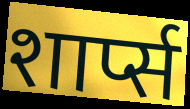
शार्प्स